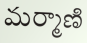
మర్మాణి